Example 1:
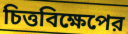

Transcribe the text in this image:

চিত্তবিক্ষেপের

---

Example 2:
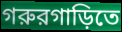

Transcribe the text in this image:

গরুরগাড়িতে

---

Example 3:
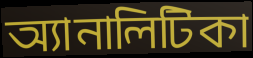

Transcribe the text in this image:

অ্যানালিটিকা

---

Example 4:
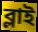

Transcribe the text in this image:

ব্লাই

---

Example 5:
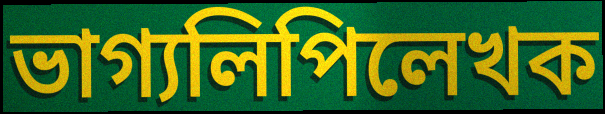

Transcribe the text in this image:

ভাগ্যলিপিলেখক